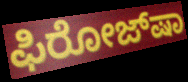
ಫಿರೋಜ್‌ಷಾ